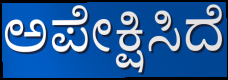
ಅಪೇಕ್ಷಿಸಿದೆ